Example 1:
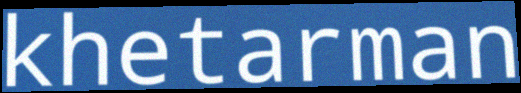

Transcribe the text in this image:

khetarman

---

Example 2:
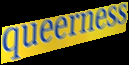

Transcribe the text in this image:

queerness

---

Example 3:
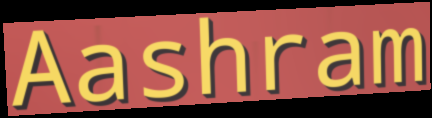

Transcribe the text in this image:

Aashram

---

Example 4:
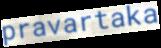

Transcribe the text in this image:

pravartaka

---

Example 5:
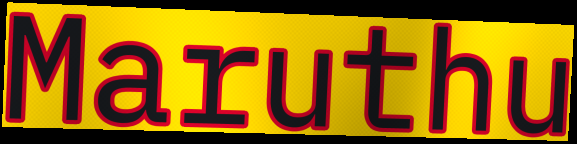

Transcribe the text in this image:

Maruthu